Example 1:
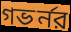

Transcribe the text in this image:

গভর্নর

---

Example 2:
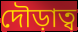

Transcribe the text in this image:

দৌড়াত্ব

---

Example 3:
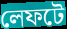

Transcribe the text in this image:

লেফটে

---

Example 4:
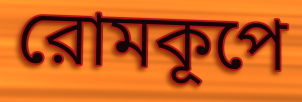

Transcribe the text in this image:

রোমকূপে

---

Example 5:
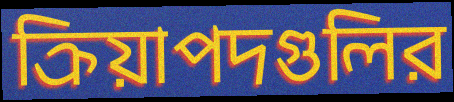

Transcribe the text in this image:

ক্রিয়াপদগুলির